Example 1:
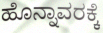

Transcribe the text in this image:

ಹೊನ್ನಾವರಕ್ಕೆ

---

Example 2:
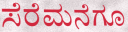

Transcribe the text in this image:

ಸೆರೆಮನೆಗೂ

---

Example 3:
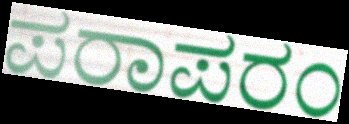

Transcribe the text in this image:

ಪರಾಪರಂ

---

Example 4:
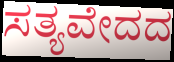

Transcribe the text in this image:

ಸತ್ಯವೇದದ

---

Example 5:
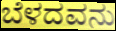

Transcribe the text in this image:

ಬೆಳದವನು